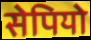
सेपियो